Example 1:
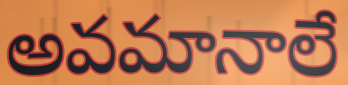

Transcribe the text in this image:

అవమానాలే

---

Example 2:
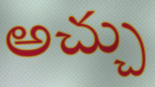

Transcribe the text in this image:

అచ్చు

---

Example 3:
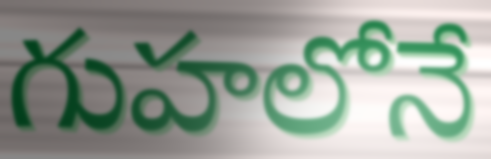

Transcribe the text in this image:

గుహలోనే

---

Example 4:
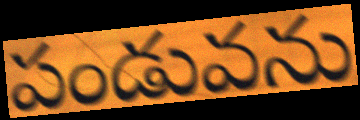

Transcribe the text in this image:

పండువను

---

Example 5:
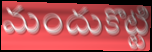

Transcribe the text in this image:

మందుకొట్టి